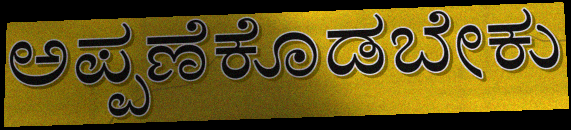
ಅಪ್ಪಣೆಕೊಡಬೇಕು